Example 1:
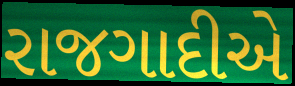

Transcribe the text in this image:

રાજગાદીએ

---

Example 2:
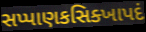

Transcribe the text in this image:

સપ્પાણકસિક્ખાપદં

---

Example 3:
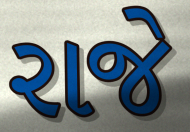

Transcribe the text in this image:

રાજે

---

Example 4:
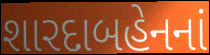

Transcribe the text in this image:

શારદાબહેનનાં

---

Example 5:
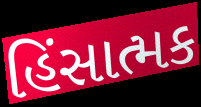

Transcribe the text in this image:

હિંસાત્મક